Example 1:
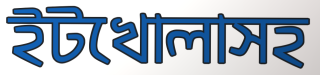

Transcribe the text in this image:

ইটখোলাসহ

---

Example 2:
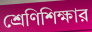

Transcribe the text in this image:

শ্রেণিশিক্ষার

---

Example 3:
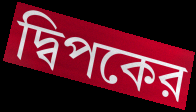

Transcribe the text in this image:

দ্বিপকের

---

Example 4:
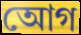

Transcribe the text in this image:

আেগ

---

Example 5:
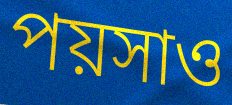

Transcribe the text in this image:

পয়সাও